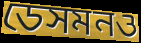
ডেসমনও